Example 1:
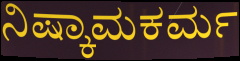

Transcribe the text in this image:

ನಿಷ್ಕಾಮಕರ್ಮ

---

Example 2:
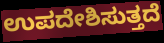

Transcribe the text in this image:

ಉಪದೇಶಿಸುತ್ತದೆ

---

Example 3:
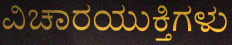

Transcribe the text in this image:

ವಿಚಾರಯುಕ್ತಿಗಳು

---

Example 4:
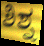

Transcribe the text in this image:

ಶಿಶ್ನ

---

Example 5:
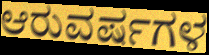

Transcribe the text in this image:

ಆರುವರ್ಷಗಳ